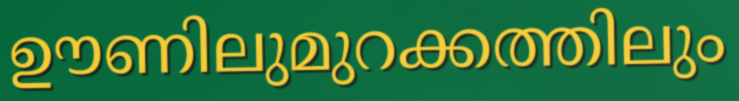
ഊണിലുമുറക്കത്തിലും